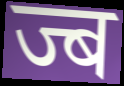
ज्ब